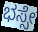
ಭಸ್ಸೇ